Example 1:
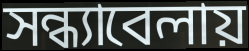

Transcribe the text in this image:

সন্ধ্যাবেলায়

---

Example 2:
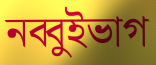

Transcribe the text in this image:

নব্বুইভাগ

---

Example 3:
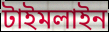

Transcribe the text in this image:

টাইমলাইন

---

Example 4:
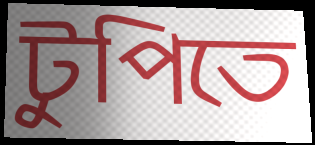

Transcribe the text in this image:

টুপিতে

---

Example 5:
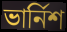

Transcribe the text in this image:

ভার্নিশ